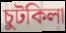
চুটকিলা